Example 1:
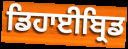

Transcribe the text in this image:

ਡਿਹਾਈਬ੍ਰਿਡ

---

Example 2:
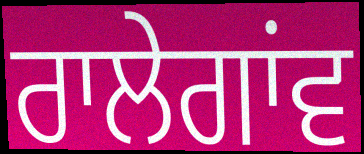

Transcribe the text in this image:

ਰਾਲੇਗਾਂਵ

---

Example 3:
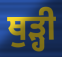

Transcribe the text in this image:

ਥੁੜ੍ਹੀ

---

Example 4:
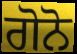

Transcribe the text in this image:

ਗੋਨੋ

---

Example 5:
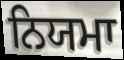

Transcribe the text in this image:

ਨਿਯਮਾ